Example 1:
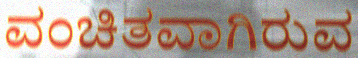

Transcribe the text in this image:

ವಂಚಿತವಾಗಿರುವ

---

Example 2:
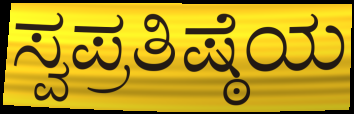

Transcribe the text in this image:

ಸ್ವಪ್ರತಿಷ್ಠೆಯ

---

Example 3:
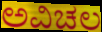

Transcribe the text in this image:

ಅವಿಚಲ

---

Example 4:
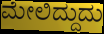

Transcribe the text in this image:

ಮೇಲಿದ್ದುದು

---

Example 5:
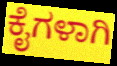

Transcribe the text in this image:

ಕೈಗಳಾಗಿ